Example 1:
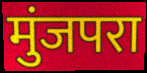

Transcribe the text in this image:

मुंजपरा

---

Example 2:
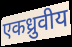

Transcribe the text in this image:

एकध्रुवीय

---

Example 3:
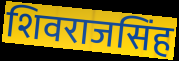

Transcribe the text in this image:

शिवराजसिंह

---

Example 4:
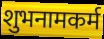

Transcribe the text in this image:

शुभनामकर्म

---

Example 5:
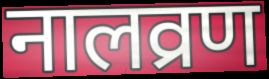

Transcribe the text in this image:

नालव्रण